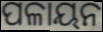
ପଳାୟନ